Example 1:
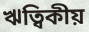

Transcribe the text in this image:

ঋত্বিকীয়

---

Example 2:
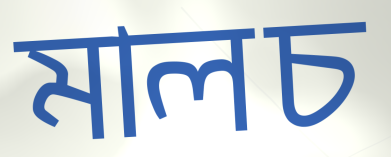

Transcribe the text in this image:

মালচ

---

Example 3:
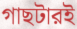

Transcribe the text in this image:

গাছটারই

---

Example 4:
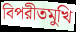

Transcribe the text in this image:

বিপরীতমুখি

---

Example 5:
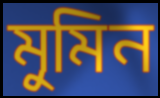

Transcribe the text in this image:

মুমিন